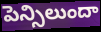
పెన్సిలుందా